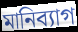
মানিব্যাগ